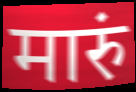
मारुं